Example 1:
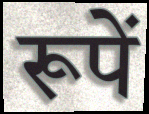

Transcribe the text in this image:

रूपें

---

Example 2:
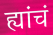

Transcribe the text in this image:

ह्यांचं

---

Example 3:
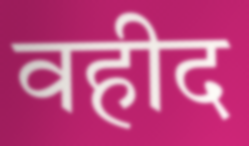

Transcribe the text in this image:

वहीद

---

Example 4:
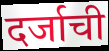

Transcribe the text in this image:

दर्जाची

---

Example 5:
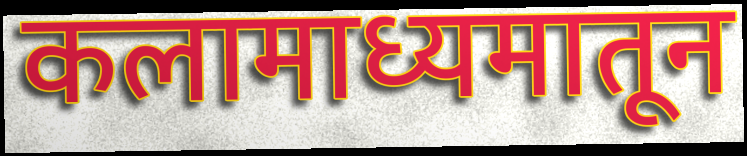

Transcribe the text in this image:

कलामाध्यमातून